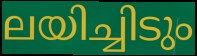
ലയിച്ചിടും